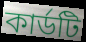
কার্ডটি